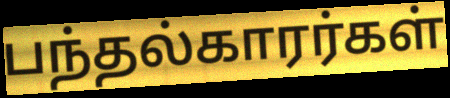
பந்தல்காரர்கள்